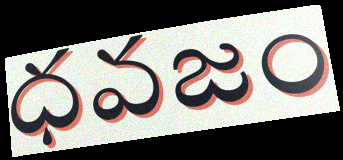
ధవజం